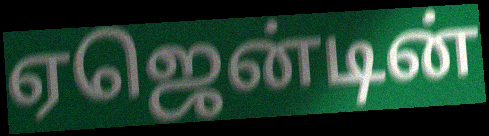
ஏஜென்டின்